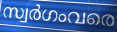
സ്വർഗംവരെ